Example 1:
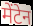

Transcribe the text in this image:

मेंटेन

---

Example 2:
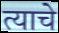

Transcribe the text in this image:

त्याचे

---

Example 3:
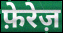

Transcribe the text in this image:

फ़ेरेज़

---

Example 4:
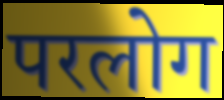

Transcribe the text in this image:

परलोग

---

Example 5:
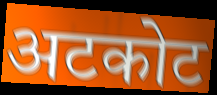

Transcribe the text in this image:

अटकोट